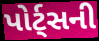
પોર્ટ્સની